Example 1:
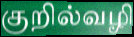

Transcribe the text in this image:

குறில்வழி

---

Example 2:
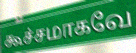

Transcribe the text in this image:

கூச்சமாகவே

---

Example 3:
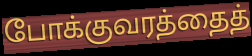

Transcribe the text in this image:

போக்குவரத்தைத்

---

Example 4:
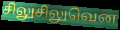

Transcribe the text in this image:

சிலுசிலுவென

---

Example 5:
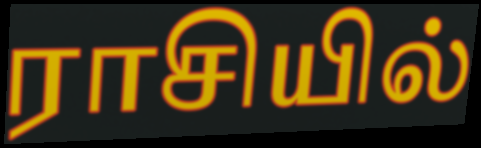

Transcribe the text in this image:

ராசியில்